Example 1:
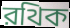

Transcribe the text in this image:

রথিক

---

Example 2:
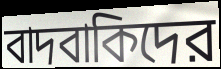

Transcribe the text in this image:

বাদবাকিদের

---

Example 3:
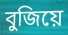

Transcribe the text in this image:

বুজিয়ে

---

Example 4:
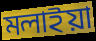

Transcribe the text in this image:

মলাইয়া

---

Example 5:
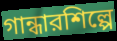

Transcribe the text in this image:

গান্ধারশিল্পে